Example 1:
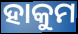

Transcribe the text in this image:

ହାକୁମ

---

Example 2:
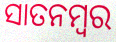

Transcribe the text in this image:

ସାତନମ୍ବର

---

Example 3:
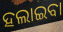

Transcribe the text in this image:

ହଲାଇବା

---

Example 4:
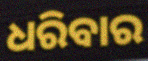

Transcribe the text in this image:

ଧରିବାର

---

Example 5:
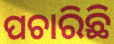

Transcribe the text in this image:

ପଚାରିଛି